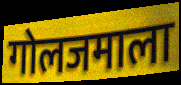
गोलजमाला